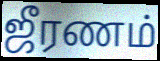
ஜீரணம்